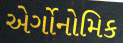
એર્ગોનોમિક